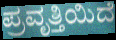
ಪ್ರವೃತ್ತಿಯಿದೆ